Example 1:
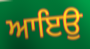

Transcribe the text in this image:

ਆਇਉ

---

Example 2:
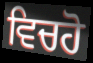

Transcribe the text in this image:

ਵਿਚਹੋ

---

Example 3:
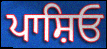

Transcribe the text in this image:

ਪਾਸ਼ਿਓ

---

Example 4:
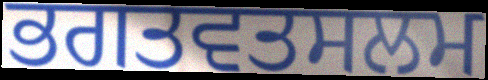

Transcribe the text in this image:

ਭਗਤਵਤਸਲਮ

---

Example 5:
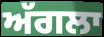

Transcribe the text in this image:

ਅੱਗਲਾ